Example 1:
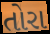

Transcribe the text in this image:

તોરા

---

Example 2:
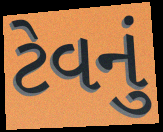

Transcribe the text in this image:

ટેવનું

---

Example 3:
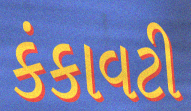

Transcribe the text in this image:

કંકાવટી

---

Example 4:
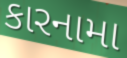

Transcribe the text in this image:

કારનામા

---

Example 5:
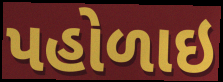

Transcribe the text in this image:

પહોળાઇ